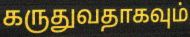
கருதுவதாகவும்